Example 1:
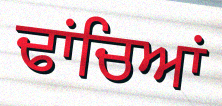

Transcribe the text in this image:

ਢਾਂਚਿਆਂ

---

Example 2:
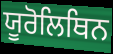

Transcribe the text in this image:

ਯੂਰੋਲਿਥਿਨ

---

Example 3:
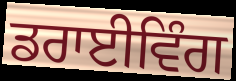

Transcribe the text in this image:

ਡਰਾਈਵਿੰਗ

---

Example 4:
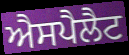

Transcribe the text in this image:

ਐਸਪੈਲੈਟ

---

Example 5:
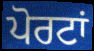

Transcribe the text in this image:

ਪੋਰਟਾਂ